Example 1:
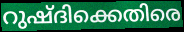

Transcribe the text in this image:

റുഷ്ദിക്കെതിരെ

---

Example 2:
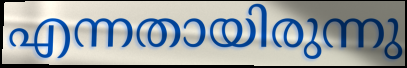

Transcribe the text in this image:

എന്നതായിരുന്നു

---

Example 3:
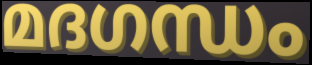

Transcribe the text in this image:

മദഗന്ധം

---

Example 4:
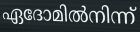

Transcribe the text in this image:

ഏദോമിൽനിന്ന്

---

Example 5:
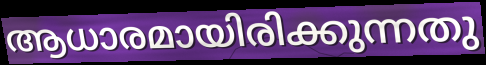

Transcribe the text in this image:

ആധാരമായിരിക്കുന്നതു